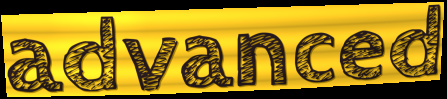
advanced